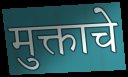
मुक्ताचे